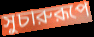
সুচারুরূপে